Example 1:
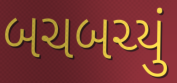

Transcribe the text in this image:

બચબચ્યું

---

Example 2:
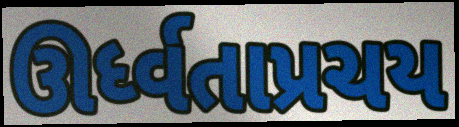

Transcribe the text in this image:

ઊર્ધ્વતાપ્રચય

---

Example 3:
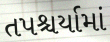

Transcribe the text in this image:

તપશ્ચર્યામાં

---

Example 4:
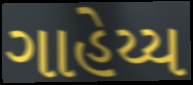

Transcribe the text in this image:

ગાહેય્ય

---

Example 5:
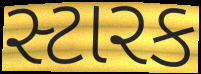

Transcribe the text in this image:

સ્ટારક